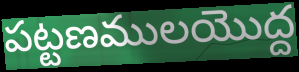
పట్టణములయొద్ద